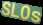
SLOs